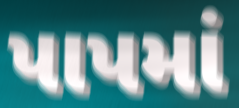
પાપમાં